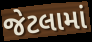
જેટલામાં